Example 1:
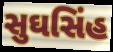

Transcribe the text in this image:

સુઘસિંહ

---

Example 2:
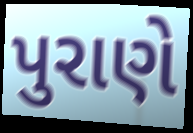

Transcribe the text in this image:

પુરાણે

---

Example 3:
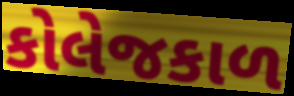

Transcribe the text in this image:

કોલેજકાળ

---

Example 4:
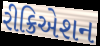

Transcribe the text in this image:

રીક્રિએશન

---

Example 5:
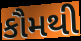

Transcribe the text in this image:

કૌમથી